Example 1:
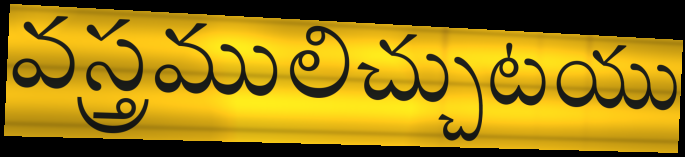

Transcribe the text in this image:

వస్త్రములిచ్చుటయు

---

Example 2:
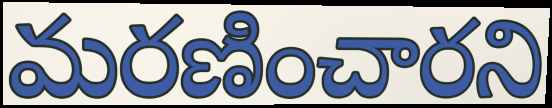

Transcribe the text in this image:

మరణించారని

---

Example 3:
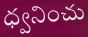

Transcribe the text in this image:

ధ్వనించు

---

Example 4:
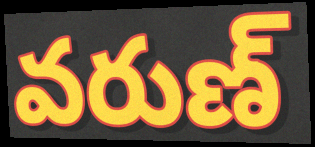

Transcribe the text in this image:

వరుణ్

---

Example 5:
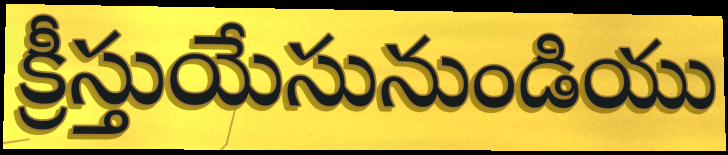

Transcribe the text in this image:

క్రీస్తుయేసునుండియు